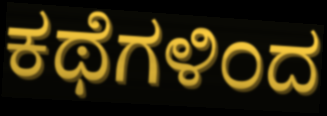
ಕಥೆಗಳಿಂದ